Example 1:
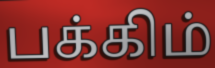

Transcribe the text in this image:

பக்கிம்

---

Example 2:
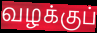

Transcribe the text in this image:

வழக்குப்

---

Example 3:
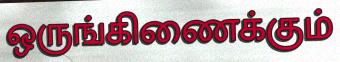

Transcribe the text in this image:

ஒருங்கிணைக்கும்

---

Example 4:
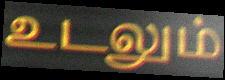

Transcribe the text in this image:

உடலும்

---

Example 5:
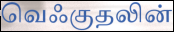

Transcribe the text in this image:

வெஃகுதலின்